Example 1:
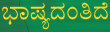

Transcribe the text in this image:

ಭಾಷ್ಯದಂತಿದೆ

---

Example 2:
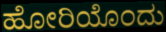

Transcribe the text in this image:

ಹೋರಿಯೊಂದು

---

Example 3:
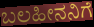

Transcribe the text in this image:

ಬಲಹೀನನಿಗೆ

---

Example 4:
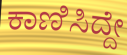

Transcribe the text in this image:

ಕಾಣಿಸಿದ್ದೇ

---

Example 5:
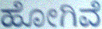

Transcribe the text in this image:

ಹೋಗಿವೆ